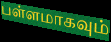
பள்ளமாகவும்